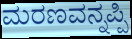
ಮರಣವನ್ನಪ್ಪಿ